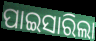
ପାଇସାରିଲା